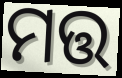
ମତ୍ତ